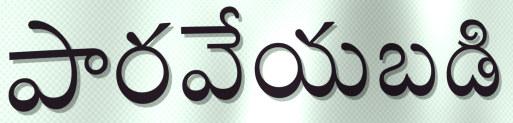
పారవేయబడి